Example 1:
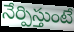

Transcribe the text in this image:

నేర్పిస్తుంటే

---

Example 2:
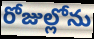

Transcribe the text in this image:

రోజుల్లోను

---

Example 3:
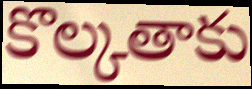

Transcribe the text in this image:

కొల్కతాకు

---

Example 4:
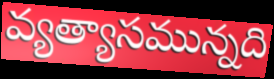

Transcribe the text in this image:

వ్యత్యాసమున్నది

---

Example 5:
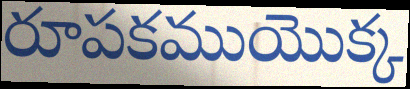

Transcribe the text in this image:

రూపకముయొక్క